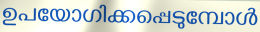
ഉപയോഗിക്കപ്പെടുമ്പോൾ